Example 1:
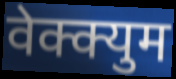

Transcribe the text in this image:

वेक्क्युम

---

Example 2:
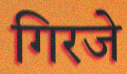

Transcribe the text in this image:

गिरजे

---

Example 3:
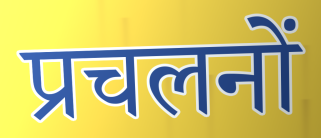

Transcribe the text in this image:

प्रचलनों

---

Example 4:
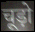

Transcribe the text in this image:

चूड़ो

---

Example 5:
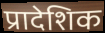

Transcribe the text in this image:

प्रादेशिक